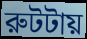
রুটটায়